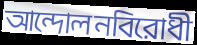
আন্দোলনবিরোধী